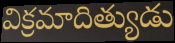
విక్రమాదిత్యుడు